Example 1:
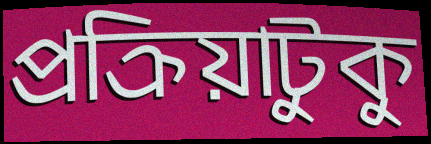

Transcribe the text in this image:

প্রক্রিয়াটুকু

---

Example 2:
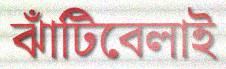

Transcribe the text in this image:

ঝাঁটিবেলাই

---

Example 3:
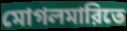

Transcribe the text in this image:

মোগলমারিতে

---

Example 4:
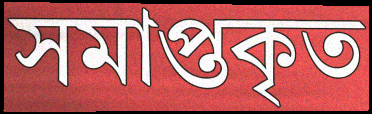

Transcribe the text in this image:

সমাপ্তকৃত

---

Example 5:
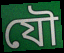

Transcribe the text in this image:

যৌ